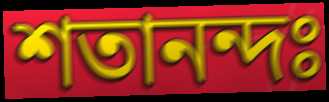
শতানন্দঃ